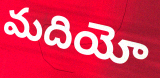
మదియో